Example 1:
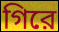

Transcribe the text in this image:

গিরে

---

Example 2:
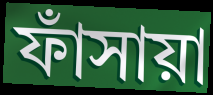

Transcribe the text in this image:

ফাঁসায়া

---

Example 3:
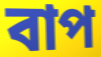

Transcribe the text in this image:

বাপ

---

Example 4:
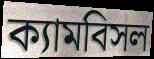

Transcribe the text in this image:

ক্যামবিসল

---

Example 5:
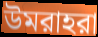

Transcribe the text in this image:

উমরাহরা